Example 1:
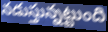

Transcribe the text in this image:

నడుస్తున్నట్టుంది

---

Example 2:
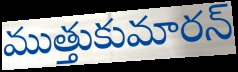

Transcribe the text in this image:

ముత్తుకుమారన్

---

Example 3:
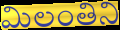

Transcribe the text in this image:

మిలంతిని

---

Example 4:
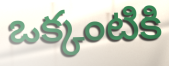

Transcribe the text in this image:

ఒక్కంటికి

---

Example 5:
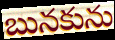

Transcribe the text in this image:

బునకును